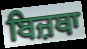
ਬਿਜ਼ਥਾ